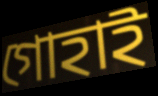
গোহাই